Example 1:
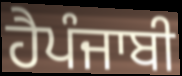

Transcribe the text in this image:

ਹੈਪੰਜਾਬੀ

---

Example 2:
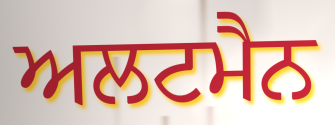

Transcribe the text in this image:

ਅਲਟਮੈਨ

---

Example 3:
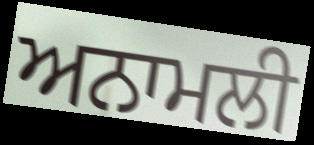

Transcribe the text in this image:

ਅਨਾਮਲੀ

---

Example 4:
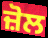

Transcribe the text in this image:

ਜ਼ੋਲ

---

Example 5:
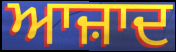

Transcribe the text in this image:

ਆਜ਼ਾਦ